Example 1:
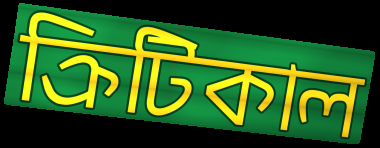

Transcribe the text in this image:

ক্রিটিকাল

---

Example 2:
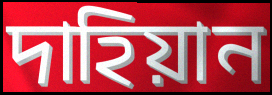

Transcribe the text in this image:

দাহিয়ান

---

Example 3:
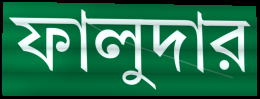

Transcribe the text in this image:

ফালুদার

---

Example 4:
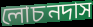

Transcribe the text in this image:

লোচনদাস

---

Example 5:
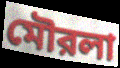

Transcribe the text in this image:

মৌরলা